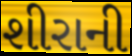
શીરાની